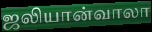
ஜலியான்வாலா